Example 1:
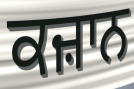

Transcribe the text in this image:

ਕਜ਼ਾਨ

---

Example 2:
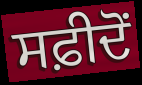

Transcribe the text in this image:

ਸਫ਼ੀਦੋਂ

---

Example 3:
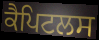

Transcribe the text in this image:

ਕੈਪਿਟਲਸ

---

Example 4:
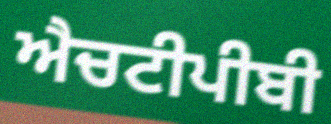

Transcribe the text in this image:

ਐਚਟੀਪੀਬੀ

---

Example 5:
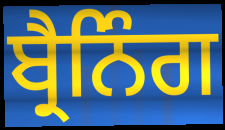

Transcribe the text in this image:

ਬ੍ਰੈਨਿੰਗ